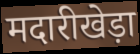
मदारीखेड़ा